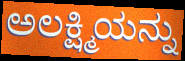
ಅಲಕ್ಷ್ಮಿಯನ್ನು